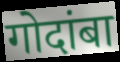
गोदांबा